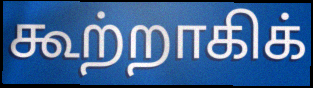
கூற்றாகிக்